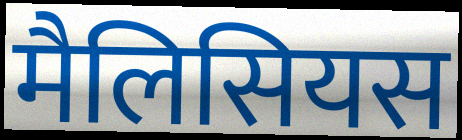
मैलिसियस